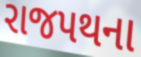
રાજપથના